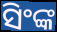
ସିଂଙ୍କ